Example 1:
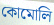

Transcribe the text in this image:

কোমোলি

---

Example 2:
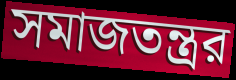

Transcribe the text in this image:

সমাজতন্ত্রর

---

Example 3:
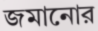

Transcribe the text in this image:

জমানোর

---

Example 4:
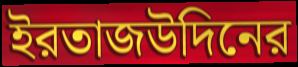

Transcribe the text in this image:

ইরতাজউদিনের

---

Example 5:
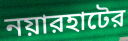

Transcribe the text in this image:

নয়ারহাটের